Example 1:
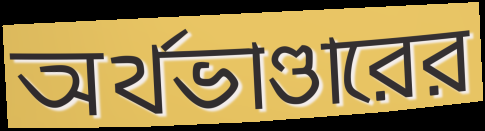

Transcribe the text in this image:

অর্থভাণ্ডারের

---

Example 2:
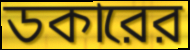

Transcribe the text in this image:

ডকারের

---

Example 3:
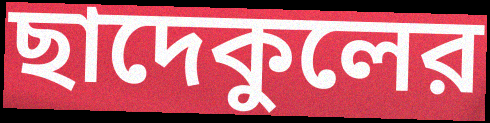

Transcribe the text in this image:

ছাদেকুলের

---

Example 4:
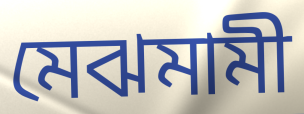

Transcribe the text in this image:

মেঝমামী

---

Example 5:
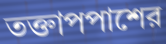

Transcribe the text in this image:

তক্তাপপাশের